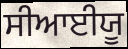
ਸੀਆਈਯੂ